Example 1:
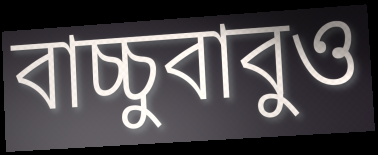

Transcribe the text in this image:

বাচ্চুবাবুও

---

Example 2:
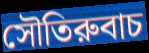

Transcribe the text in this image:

সৌতিরুবাচ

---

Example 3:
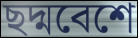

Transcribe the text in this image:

ছদ্মবেশে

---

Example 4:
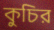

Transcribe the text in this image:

কুচির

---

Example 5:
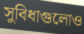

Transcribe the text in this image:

সুবিধাগুলোও